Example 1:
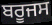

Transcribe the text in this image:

ਬਰੂਜਸ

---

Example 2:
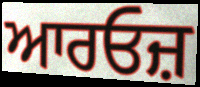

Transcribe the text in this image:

ਆਰਓਜ਼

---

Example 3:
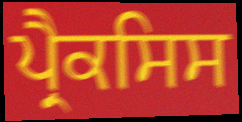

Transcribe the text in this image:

ਪ੍ਰੈਕਸਿਸ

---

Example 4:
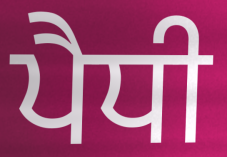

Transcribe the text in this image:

ਪੈਧੀ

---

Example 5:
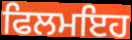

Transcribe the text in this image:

ਫਿਲਮਇਹ